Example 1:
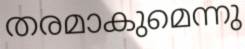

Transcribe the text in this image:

തരമാകുമെന്നു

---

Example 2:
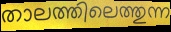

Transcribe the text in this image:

താലത്തിലെത്തുന്ന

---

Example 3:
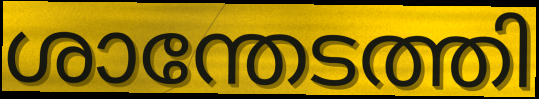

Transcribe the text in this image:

ശാന്തേടത്തി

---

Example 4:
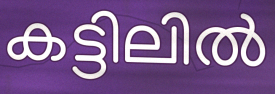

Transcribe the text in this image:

കട്ടിലിൽ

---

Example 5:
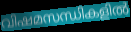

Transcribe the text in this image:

വിഷമസന്ധികളിൽ